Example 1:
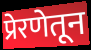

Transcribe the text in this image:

प्रेरणेतून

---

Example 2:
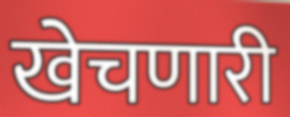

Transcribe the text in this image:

खेचणारी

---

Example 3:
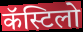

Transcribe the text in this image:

कॅस्टिलो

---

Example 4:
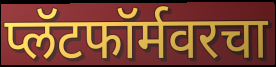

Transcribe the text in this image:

प्लॅटफॉर्मवरचा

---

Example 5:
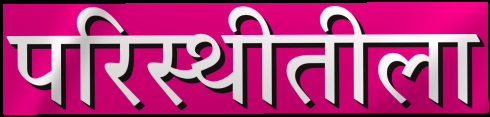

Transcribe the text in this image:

परिस्थीतीला